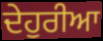
ਦੇਹੁਰੀਆ